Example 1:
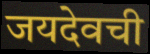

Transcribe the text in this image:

जयदेवची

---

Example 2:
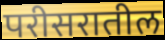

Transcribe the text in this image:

परीसरातील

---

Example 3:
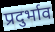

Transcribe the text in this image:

प्रदुर्भाव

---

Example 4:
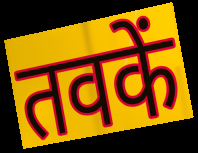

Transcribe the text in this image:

तवकें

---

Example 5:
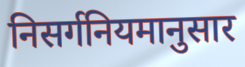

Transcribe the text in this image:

निसर्गनियमानुसार